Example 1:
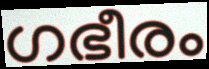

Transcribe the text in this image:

ഗഭീരം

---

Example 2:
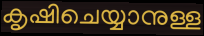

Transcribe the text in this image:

കൃഷിചെയ്യാനുള്ള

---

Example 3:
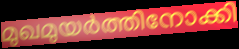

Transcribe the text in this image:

മുഖമുയർത്തിനോക്കി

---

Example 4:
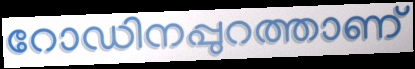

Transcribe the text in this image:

റോഡിനപ്പുറത്താണ്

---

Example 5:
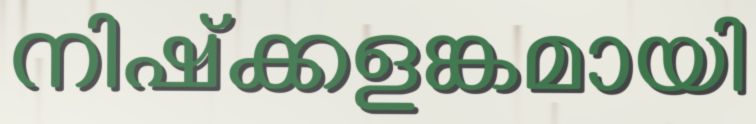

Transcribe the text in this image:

നിഷ്ക്കളങ്കമായി